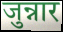
जुन्नार